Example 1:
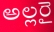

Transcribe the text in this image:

అల్లరై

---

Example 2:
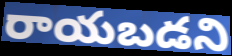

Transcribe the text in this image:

రాయబడని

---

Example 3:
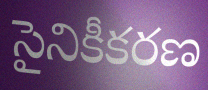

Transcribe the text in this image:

సైనికీకరణ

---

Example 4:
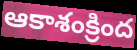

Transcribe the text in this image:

ఆకాశంక్రింద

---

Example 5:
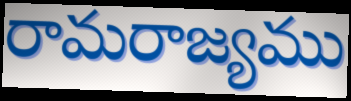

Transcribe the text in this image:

రామరాజ్యము